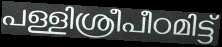
പള്ളിശ്രീപീഠമിട്ട്